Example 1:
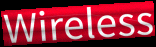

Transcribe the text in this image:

Wireless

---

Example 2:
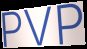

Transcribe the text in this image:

PVP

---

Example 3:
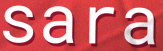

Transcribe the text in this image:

sara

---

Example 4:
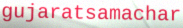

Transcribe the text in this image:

gujaratsamachar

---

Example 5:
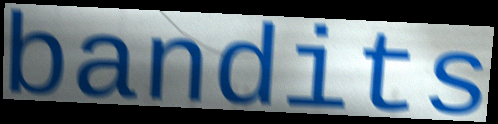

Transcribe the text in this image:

bandits